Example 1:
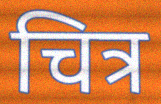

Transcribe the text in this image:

चित्र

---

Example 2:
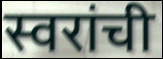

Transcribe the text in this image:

स्वरांची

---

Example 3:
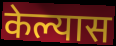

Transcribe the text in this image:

केल्यास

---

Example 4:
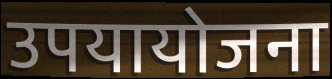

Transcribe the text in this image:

उपयायोजना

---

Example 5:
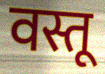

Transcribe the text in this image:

वस्तू